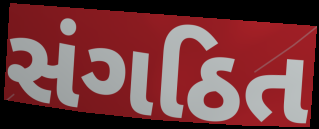
સંગઠિત